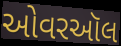
ઓવરઑલ